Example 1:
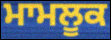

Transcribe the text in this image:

ਮਾਮਲੂਕ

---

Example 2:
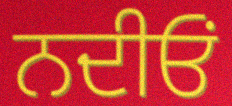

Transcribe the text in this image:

ਨਦੀਓਂ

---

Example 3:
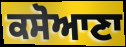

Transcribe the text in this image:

ਕਸੋਆਣਾ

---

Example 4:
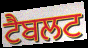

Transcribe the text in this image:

ਟੈਬਲਟ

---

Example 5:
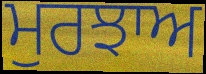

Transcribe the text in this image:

ਮੁਰਝਾਅ